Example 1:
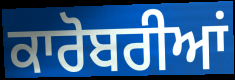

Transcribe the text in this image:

ਕਾਰੋਬਰੀਆਂ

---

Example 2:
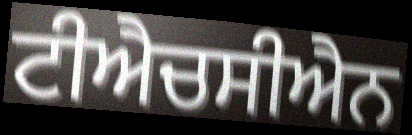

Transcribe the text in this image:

ਟੀਐਚਸੀਐਨ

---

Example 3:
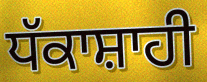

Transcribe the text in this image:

ਧੱਕਾਸ਼ਾਹੀ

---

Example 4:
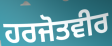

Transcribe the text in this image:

ਹਰਜੋਤਵੀਰ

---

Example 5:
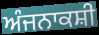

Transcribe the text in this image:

ਅੰਜਨਾਕਸ਼ੀ